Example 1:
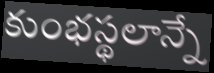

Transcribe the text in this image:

కుంభస్థలాన్నే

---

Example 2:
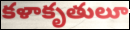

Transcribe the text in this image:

కళాకృతులూ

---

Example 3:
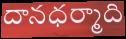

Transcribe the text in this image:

దానధర్మాది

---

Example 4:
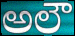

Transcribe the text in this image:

అలౌ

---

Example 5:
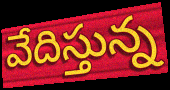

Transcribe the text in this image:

వేదిస్తున్న